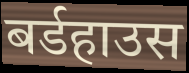
बर्डहाउस